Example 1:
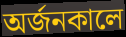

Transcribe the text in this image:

অর্জনকালে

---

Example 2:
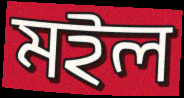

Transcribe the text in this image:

মইল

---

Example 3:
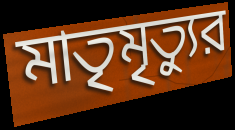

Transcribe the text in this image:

মাতৃমৃত্যুর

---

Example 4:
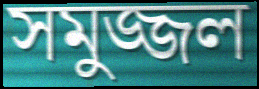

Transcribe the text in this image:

সমুজ্জল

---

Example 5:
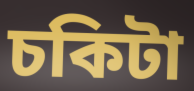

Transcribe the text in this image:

চকিটা